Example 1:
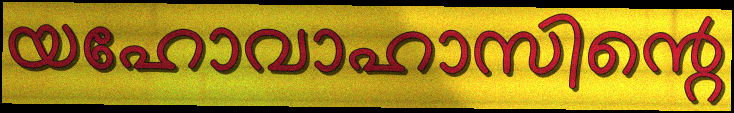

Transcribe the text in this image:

യഹോവാഹാസിന്റെ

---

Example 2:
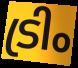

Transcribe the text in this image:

ട്രിം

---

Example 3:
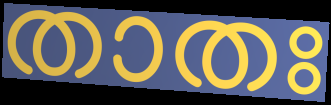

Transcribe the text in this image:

താതഃ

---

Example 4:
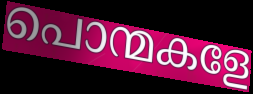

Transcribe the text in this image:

പൊന്മകളേ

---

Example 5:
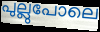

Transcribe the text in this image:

പുല്ലുപോലെ